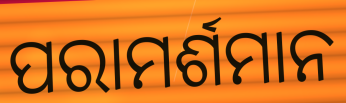
ପରାମର୍ଶମାନ